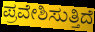
ಪ್ರವೇಶಿಸುತ್ತಿದೆ